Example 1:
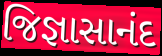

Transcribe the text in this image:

જિજ્ઞાસાનંદ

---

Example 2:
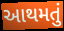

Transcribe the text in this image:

આથમતું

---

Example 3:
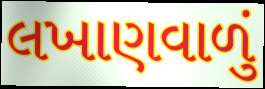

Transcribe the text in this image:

લખાણવાળું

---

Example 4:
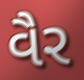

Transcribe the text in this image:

વૈર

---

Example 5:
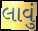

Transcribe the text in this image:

લાવું